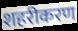
शहरीकरण